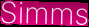
Simms